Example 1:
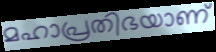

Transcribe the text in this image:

മഹാപ്രതിഭയാണ്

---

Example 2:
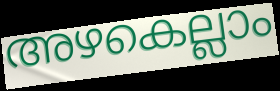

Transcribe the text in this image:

അഴകെല്ലാം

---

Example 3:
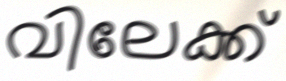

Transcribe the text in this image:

വിലേക്ക്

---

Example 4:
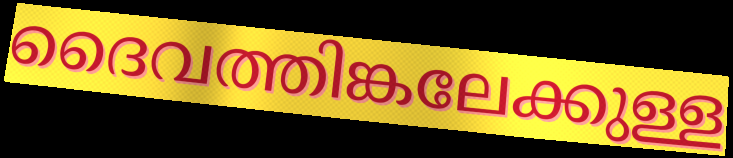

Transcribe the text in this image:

ദൈവത്തിങ്കലേക്കുള്ള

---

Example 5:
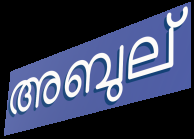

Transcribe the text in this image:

അബുല്